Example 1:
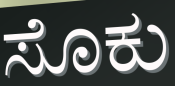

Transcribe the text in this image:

ಸೊಕು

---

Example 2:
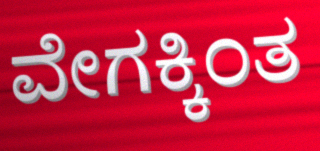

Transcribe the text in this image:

ವೇಗಕ್ಕಿಂತ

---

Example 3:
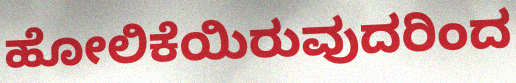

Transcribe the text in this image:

ಹೋಲಿಕೆಯಿರುವುದರಿಂದ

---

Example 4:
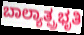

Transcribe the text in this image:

ಬಾಲ್ಯಾತ್ಪ್ರಭೃತಿ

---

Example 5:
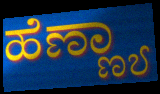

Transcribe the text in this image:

ಹೆಣ್ಣ್ಯಾ